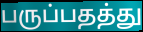
பருப்பதத்து